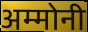
अम्मोनी